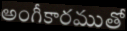
అంగీకారముతో